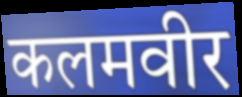
कलमवीर